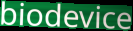
biodevice